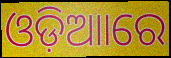
ଓଡ଼ିଆାରେ